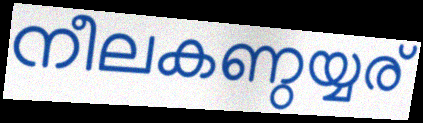
നീലകണ്ഠയ്യര്